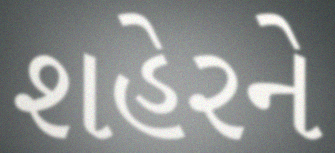
શહેરને